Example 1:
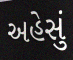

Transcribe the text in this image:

અહેસું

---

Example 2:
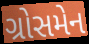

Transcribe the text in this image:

ગ્રોસમેન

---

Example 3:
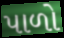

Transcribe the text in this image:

પાળો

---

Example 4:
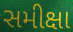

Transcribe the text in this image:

સમીક્ષા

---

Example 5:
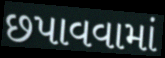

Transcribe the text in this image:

છપાવવામાં